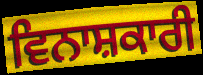
ਵਿਨਾਸ਼ਕਾਰੀ